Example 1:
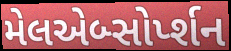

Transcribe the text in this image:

મેલએબ્સોર્પ્શન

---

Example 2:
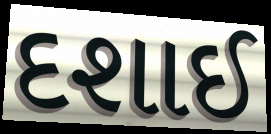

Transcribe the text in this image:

દશાઈ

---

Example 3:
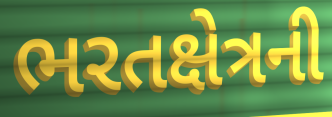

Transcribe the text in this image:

ભરતક્ષેત્રની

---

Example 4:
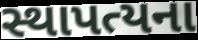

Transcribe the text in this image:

સ્થાપત્યના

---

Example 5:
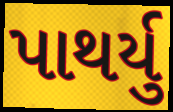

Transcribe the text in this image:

પાથર્યુ